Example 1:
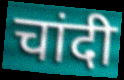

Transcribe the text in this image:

चांदी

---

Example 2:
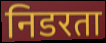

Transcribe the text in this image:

निडरता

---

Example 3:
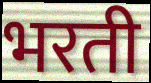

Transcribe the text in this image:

भरती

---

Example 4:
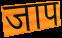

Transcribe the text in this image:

जाप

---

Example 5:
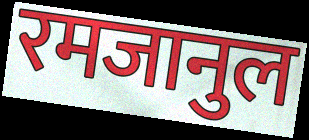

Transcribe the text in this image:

रमजानुल